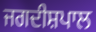
ਜਗਦੀਸ਼ਪਾਲ